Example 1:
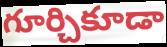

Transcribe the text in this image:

గూర్చికూడా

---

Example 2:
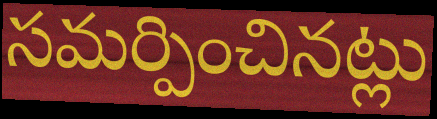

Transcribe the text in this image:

సమర్పించినట్లు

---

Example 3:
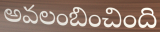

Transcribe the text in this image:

అవలంబించింది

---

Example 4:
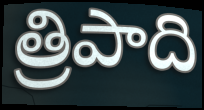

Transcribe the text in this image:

త్రిపాది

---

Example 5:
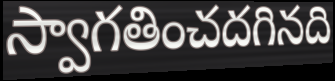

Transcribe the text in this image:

స్వాగతించదగినది